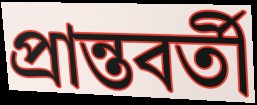
প্রান্তবর্তী